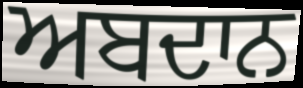
ਅਬਦਾਨ